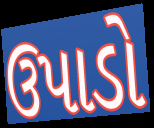
ઉપાડો